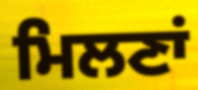
ਮਿਲਣਾਂ